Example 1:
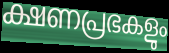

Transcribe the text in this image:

ക്ഷണപ്രഭകളും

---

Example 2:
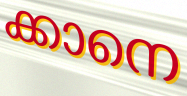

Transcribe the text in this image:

ക്കാനെ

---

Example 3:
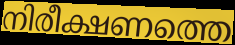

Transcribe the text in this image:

നിരീക്ഷണത്തെ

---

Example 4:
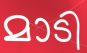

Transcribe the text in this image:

മാടി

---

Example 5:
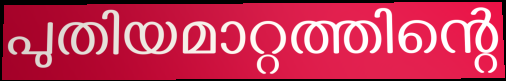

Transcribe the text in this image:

പുതിയമാറ്റത്തിന്റെ